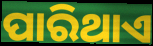
ପାରିଥାଏ